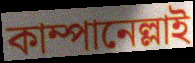
কাম্পানেল্লাই